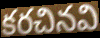
కరచినవి